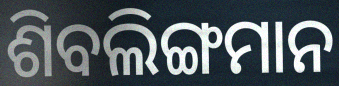
ଶିବଲିଙ୍ଗମାନ